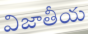
విజాతీయ